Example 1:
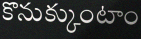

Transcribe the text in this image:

కొనుక్కుంటాం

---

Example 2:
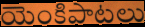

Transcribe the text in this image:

యెంకిపాటలు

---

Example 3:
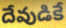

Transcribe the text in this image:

దేవుడికే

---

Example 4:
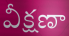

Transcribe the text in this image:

వీక్షణా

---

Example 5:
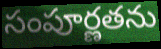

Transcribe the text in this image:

సంపూర్ణతను